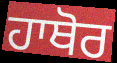
ਹਾਥੋਰ